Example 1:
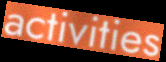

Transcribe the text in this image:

activities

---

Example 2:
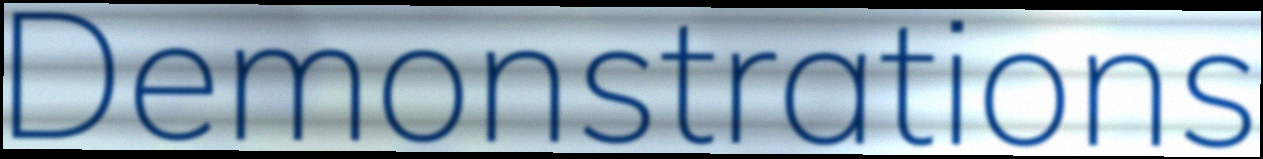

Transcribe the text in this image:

Demonstrations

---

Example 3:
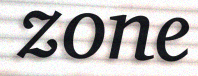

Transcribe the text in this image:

zone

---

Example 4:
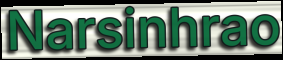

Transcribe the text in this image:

Narsinhrao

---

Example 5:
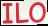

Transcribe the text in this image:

ILO